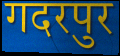
गदरपुर